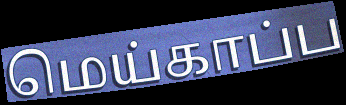
மெய்காப்ப